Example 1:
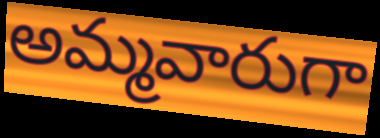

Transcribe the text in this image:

అమ్మవారుగా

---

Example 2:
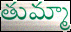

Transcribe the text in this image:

తుమ్మా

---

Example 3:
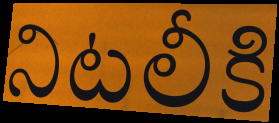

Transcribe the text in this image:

నిటలీకి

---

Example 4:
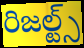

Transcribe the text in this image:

రిజల్ట్స్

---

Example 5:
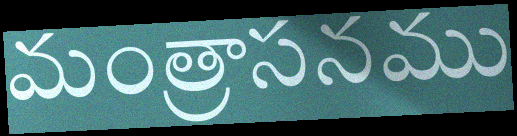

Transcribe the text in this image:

మంత్రాసనము